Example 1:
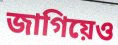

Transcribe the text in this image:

জাগিয়েও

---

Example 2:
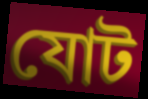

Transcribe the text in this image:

যোট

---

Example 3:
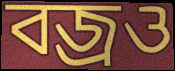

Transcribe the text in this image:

বজ্রও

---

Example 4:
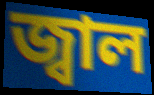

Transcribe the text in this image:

জ্বাল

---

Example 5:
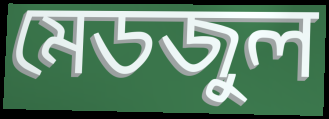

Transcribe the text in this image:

মেডজুল